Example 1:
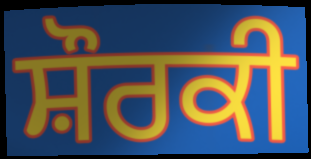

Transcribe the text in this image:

ਸ਼ੌਰਕੀ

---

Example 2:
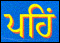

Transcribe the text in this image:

ਪਹਿਂ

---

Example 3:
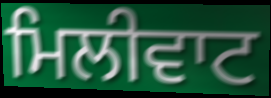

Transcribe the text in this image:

ਮਿਲੀਵਾਟ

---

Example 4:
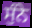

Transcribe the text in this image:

ਸੁੰਨੇ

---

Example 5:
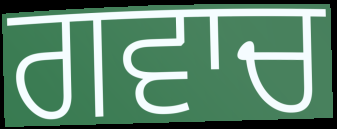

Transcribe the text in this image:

ਗਵਾਚ